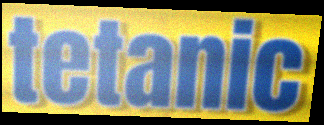
tetanic